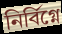
নির্বিগ্নে